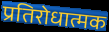
प्रतिरोधात्मक